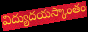
విద్యుదయస్కాంతం